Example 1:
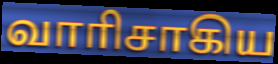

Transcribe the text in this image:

வாரிசாகிய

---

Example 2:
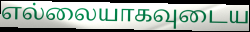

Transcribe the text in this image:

எல்லையாகவுடைய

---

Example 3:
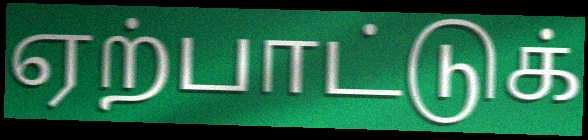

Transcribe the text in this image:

ஏற்பாட்டுக்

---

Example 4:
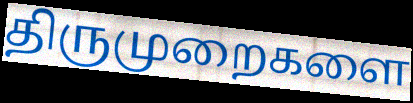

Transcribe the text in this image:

திருமுறைகளை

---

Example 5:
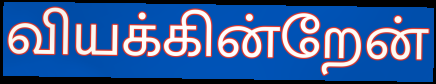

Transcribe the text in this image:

வியக்கின்றேன்